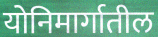
योनिमार्गातील